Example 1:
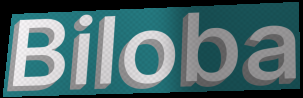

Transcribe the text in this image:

Biloba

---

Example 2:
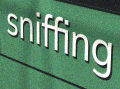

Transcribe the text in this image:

sniffing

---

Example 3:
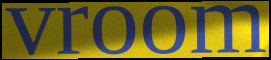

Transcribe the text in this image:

vroom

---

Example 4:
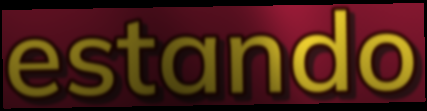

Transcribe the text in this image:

estando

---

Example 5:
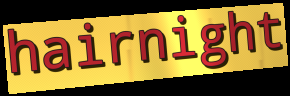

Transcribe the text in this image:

hairnight